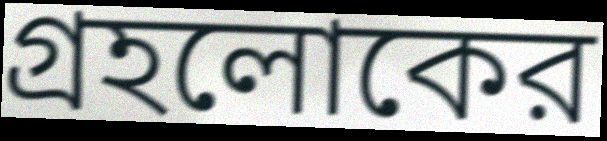
গ্রহলোকের